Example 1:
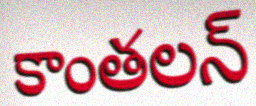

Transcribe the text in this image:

కాంతలన్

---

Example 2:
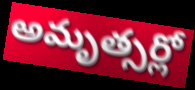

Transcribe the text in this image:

అమృత్సర్లో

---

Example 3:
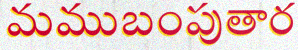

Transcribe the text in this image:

మముబంపుతార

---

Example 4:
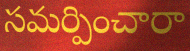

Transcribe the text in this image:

సమర్పించారా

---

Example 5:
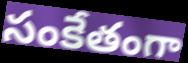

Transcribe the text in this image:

సంకేతంగా